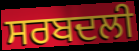
ਸਰਬਦਲੀ